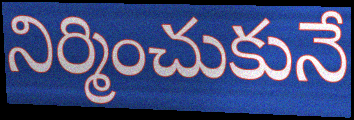
నిర్మించుకునే